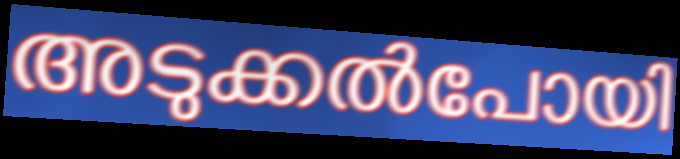
അടുക്കൽപോയി